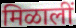
मिळालीं